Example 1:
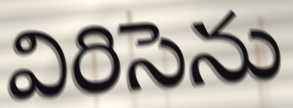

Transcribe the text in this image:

విరిసెను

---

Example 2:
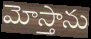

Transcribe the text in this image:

మోస్తాను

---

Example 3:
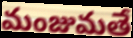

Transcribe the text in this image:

మంజుమతే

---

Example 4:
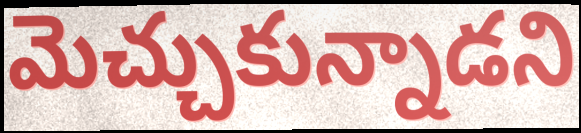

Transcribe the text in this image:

మెచ్చుకున్నాడని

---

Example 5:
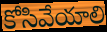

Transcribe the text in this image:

కోసివేయాలి